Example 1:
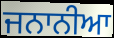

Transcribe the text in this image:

ਜਨਾਨੀਆ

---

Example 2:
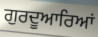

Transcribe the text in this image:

ਗੁਰਦੂਆਰਿਆਂ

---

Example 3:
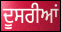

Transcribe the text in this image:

ਦੂਸਰੀਆਂ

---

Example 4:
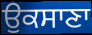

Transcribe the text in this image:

ਉਕਸਾਣਾ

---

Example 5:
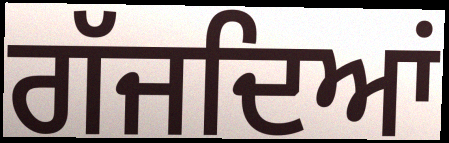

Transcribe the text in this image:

ਗੱਜਦਿਆਂ